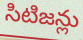
సిటిజన్లు